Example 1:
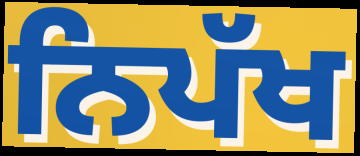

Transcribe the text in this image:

ਨਿਪੱਖ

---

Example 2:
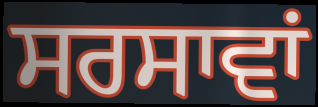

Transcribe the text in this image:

ਸਰਸਾਵਾਂ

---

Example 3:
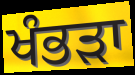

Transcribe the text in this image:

ਖੰਭੜਾ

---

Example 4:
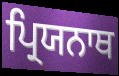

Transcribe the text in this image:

ਪ੍ਰਿਯਨਾਥ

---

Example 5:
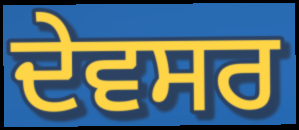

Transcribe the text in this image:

ਦੇਵਸਰ